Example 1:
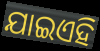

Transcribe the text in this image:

ଯାଇଏହି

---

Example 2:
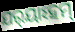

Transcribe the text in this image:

ଯର୍‌ୟାଽହମ୍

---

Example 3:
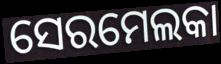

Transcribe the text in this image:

ସେରମେଲକା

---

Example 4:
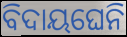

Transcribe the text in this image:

ବିଦାୟଘେନି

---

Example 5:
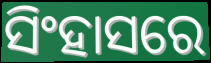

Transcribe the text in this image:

ସିଂହାସରେ